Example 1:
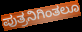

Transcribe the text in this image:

ಪುತ್ರನಿಗಿಂತಲೂ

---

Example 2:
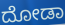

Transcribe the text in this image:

ದೋಡಾ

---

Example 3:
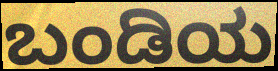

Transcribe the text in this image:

ಬಂಡಿಯ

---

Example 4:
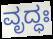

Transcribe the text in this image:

ವೃದ್ಧಃ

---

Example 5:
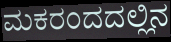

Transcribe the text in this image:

ಮಕರಂದದಲ್ಲಿನ